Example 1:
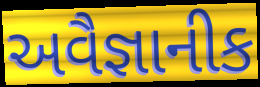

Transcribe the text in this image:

અવૈજ્ઞાનીક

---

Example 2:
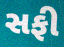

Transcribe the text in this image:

સફી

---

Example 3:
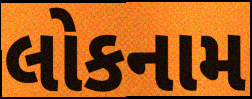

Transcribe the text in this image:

લોકનામ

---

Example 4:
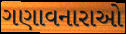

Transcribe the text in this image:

ગણાવનારાઓ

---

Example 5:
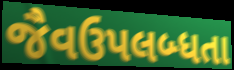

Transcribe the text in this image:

જૈવઉપલબ્ધતા